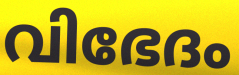
വിഭേദം